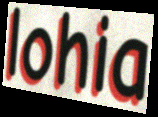
lohia